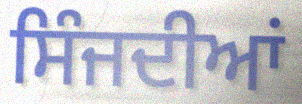
ਸਿੰਜਦੀਆਂ